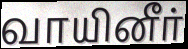
வாயினீர்